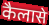
कैलासे